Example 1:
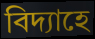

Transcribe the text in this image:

বিদ্যাহে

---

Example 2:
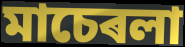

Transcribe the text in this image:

মাচেৰলা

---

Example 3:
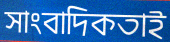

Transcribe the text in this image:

সাংবাদিকতাই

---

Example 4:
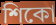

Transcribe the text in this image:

শিকো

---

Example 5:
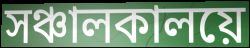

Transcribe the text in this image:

সঞ্চালকালয়ে